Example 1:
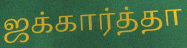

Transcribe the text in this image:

ஜக்கார்த்தா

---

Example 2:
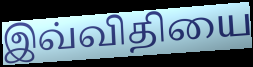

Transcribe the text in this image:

இவ்விதியை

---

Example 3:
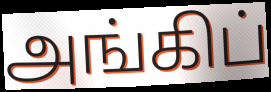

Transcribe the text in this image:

அங்கிப்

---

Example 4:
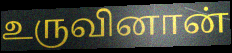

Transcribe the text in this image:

உருவினான்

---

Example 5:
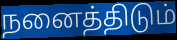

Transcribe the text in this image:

நனைத்திடும்